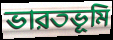
ভারতভূমি